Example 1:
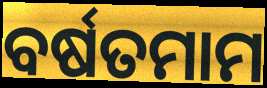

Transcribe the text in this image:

ବର୍ଷତମାମ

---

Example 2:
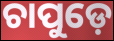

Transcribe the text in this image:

ଚାପୁଡ଼େ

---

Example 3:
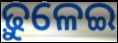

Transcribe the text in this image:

ଢ଼ୁଳେଇ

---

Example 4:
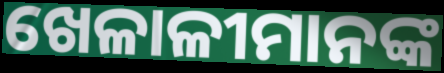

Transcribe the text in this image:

ଖେଳାଳୀମାନଙ୍କ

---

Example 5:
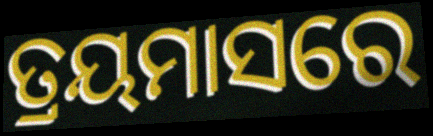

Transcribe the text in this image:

ତ୍ରୟମାସରେ